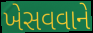
ખેસવવાને